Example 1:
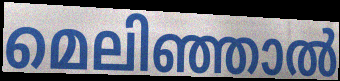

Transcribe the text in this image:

മെലിഞ്ഞാൽ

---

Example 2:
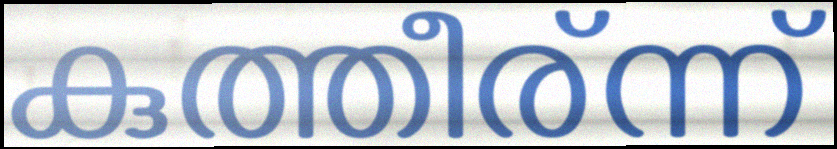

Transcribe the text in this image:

കുത്തീര്ന്ന്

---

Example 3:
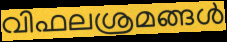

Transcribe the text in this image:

വിഫലശ്രമങ്ങൾ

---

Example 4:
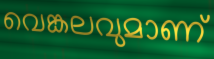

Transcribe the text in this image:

വെങ്കലവുമാണ്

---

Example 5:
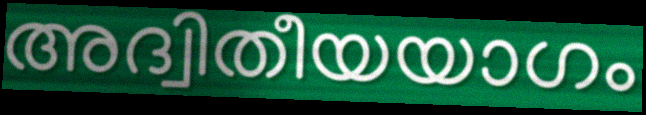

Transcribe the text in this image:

അദ്വിതീയയാഗം